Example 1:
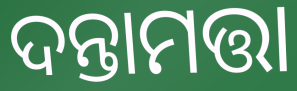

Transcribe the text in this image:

ଦନ୍ତାମତ୍ତା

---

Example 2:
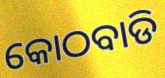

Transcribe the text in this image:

କୋଠବାଡି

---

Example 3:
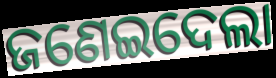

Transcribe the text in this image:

ଜଣେଇଦେଲା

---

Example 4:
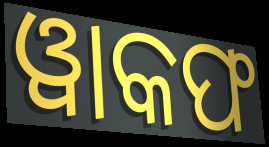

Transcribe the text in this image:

ୱାକଫ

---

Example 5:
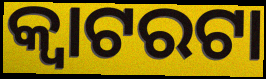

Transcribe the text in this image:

କ୍ଵାଟରଟା